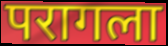
परागला